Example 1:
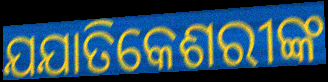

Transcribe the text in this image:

ଯଯାତିକେଶରୀଙ୍କ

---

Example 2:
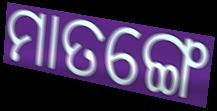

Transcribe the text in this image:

ମାତଙ୍ଗେ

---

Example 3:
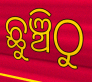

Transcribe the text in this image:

ଛୁଞ୍ଚିଠୁ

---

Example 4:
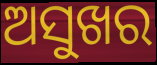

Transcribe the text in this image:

ଅସୁଖର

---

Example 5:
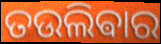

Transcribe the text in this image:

ତଉଲିଵାର